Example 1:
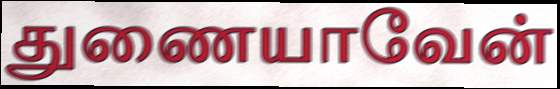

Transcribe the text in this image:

துணையாவேன்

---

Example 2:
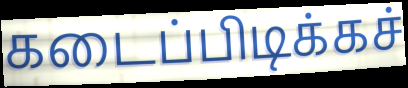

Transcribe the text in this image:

கடைப்பிடிக்கச்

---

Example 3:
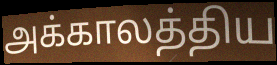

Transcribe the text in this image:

அக்காலத்திய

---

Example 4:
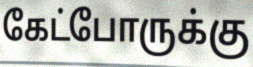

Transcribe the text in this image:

கேட்போருக்கு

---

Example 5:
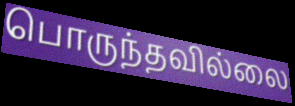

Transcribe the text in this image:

பொருந்தவில்லை